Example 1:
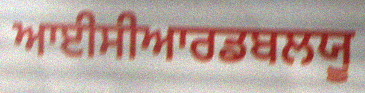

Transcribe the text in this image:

ਆਈਸੀਆਰਡਬਲਯੂ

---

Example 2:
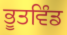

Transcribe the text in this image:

ਭੂਤਵਿੰਡ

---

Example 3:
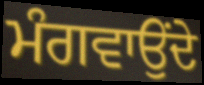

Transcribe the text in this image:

ਮੰਗਵਾਉਂਦੇ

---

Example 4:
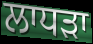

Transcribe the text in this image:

ਲਾਧੜਾ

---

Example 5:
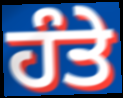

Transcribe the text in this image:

ਹੰਤੇ